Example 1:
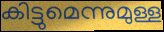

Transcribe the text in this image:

കിട്ടുമെന്നുമുള്ള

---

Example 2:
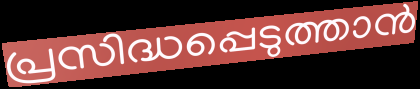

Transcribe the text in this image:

പ്രസിദ്ധപ്പെടുത്താൻ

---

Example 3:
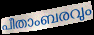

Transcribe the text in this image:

പീതാംബരവും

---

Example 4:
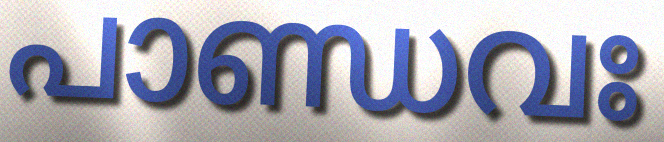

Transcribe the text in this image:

പാണ്ഡവഃ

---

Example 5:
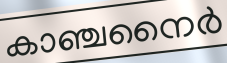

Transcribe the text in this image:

കാഞ്ചനൈർ